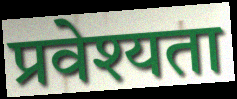
प्रवेश्यता